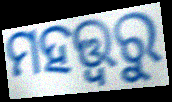
ମହତ୍ତ୍ୱରୁ